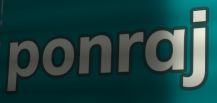
ponraj